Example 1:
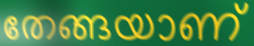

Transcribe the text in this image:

തേങ്ങയാണ്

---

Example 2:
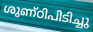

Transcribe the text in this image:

ശുണ്ഠിപിടിച്ചു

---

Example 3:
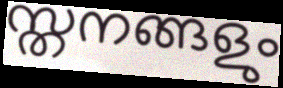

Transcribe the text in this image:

സ്തനങ്ങളും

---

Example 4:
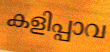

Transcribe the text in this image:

കളിപ്പാവ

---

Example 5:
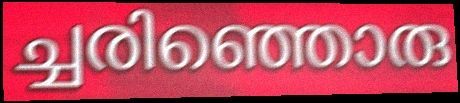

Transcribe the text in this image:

ച്ചരിഞ്ഞൊരു